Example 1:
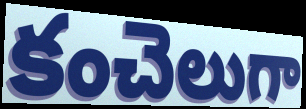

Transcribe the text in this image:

కంచెలుగా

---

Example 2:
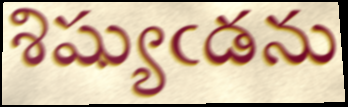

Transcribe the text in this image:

శిష్యుఁడను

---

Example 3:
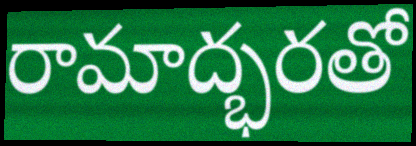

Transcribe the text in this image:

రామాద్భరతో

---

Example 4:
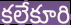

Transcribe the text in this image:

కలేకూరి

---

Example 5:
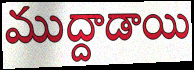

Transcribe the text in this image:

ముద్దాడాయి